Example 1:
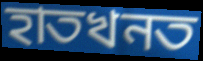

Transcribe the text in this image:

হাতখনত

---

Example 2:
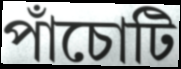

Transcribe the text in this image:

পাঁচোটি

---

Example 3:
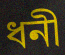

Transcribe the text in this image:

ধনী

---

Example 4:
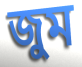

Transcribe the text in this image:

জুম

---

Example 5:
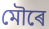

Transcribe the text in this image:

মৌৰে